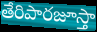
తేరిపారజూస్తా